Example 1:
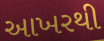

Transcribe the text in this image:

આખરથી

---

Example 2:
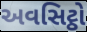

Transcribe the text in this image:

અવસિટ્ઠો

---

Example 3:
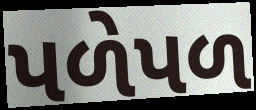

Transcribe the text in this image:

પળેપળ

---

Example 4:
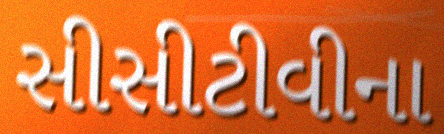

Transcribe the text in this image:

સીસીટીવીના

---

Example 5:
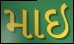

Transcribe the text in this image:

માઇ